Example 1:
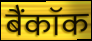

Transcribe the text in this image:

बैंकॉक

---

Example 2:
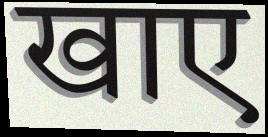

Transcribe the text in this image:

खाए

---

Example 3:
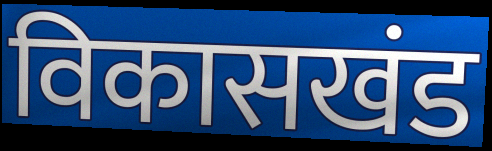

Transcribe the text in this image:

विकासखंड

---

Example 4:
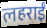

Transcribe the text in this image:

लहराईं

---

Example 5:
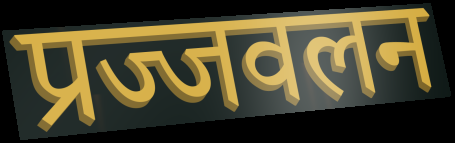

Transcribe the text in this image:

प्रज्जवलन